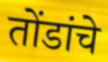
तोंडांचे